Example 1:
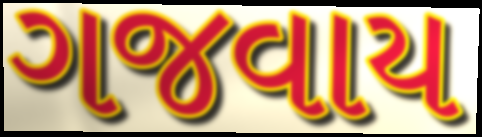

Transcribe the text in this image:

ગજવાય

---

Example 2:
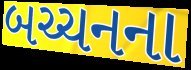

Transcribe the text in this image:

બચ્ચનના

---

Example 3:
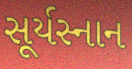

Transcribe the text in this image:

સૂર્યસ્નાન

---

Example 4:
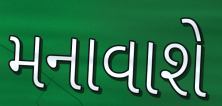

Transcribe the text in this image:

મનાવાશે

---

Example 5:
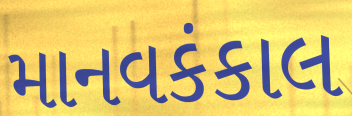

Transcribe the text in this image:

માનવકંકાલ